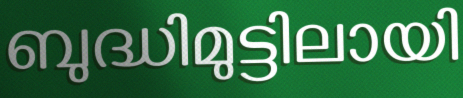
ബുദ്ധിമുട്ടിലായി